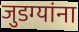
जुडग्यांना